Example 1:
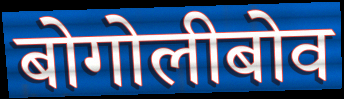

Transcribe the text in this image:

बोगोलीबोव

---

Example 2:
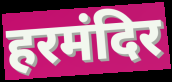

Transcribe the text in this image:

हरमंदिर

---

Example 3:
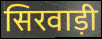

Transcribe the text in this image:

सिरवाड़ी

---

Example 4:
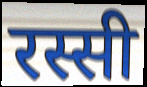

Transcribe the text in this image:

रस्सी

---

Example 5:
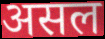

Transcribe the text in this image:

असल